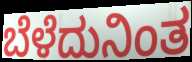
ಬೆಳೆದುನಿಂತ